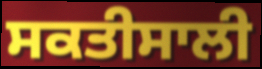
ਸਕਤੀਸਾਲੀ